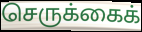
செருக்கைக்